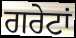
ਗਰੇਟਾਂ